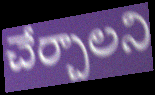
చేర్చాలని